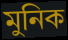
মুনিক